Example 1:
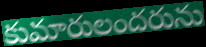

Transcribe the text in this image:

కుమారులందరును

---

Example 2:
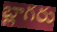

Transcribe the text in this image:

బ్లాగరు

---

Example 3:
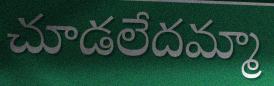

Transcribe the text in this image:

చూడలేదమ్మా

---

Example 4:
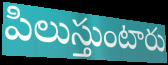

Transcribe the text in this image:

పిలుస్తుంటారు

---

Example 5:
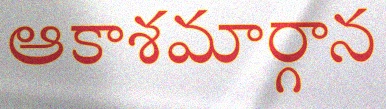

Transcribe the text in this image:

ఆకాశమార్గాన